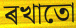
ৰখাতো